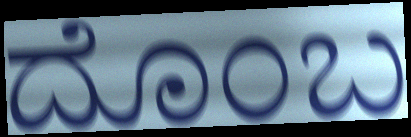
ದೊಂಬ